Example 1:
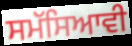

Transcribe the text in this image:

ਸਮੱਸਿਆਵੀ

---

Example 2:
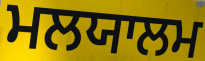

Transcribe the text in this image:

ਮਲਯਾਲਮ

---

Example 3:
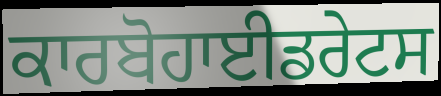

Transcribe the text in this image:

ਕਾਰਬੋਹਾਈਡਰੇਟਸ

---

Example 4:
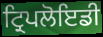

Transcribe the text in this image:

ਟ੍ਰਿਪਲੋਇਡੀ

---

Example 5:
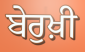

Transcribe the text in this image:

ਬੇਰੁਖ਼ੀ